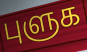
புளுக